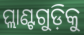
ପ୍ଲାଣ୍ଟଗୁଡ଼ିକୁ